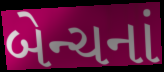
બેન્ચનાં